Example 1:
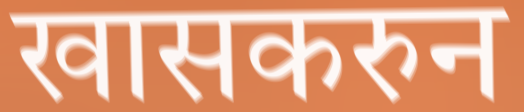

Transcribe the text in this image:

खासकरुन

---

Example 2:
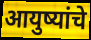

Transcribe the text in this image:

आयुष्यांचे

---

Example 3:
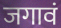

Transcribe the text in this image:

जगावं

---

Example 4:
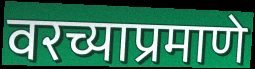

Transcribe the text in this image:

वरच्याप्रमाणे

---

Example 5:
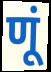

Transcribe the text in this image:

णूं